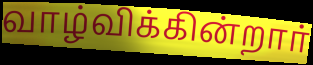
வாழ்விக்கின்றார்